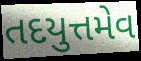
તદયુત્તમેવ